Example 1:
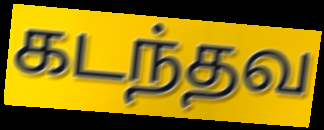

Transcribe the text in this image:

கடந்தவ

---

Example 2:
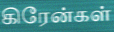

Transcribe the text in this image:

கிரேன்கள்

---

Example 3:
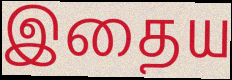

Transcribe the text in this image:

இதைய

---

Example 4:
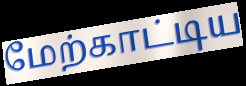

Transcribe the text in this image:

மேற்காட்டிய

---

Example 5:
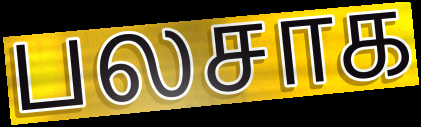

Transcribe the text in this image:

பலசாக